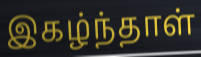
இகழ்ந்தாள்